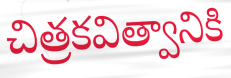
చిత్రకవిత్వానికి